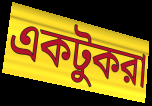
একটুকরা